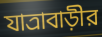
যাত্রাবাড়ীর